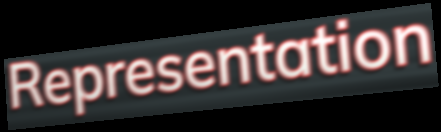
Representation